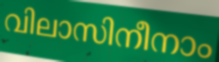
വിലാസിനീനാം